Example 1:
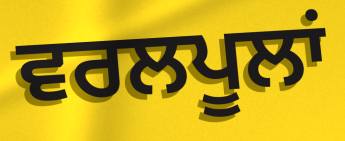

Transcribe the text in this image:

ਵਰਲਪੂਲਾਂ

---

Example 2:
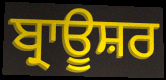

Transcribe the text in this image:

ਬ੍ਰਾਊਸ਼ਰ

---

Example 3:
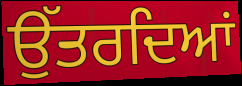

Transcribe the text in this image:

ਉੱਤਰਦਿਆਂ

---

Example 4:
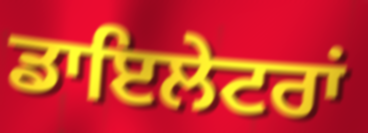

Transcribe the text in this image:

ਡਾਇਲੇਟਰਾਂ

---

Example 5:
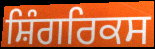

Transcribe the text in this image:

ਸ਼ਿੰਗਰਿਕਸ